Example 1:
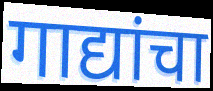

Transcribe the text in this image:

गाद्यांचा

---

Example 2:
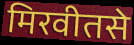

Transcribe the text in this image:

मिरवीतसे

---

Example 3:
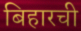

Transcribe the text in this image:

बिहारची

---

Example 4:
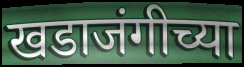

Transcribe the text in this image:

खडाजंगीच्या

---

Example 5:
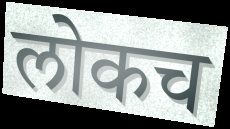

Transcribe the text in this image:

लोकच